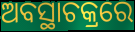
ଅବସ୍ଥାଚକ୍ରରେ